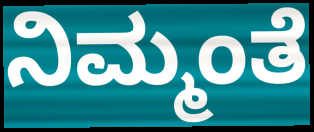
ನಿಮ್ಮಂತೆ